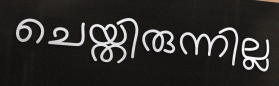
ചെയ്തിരുന്നില്ല